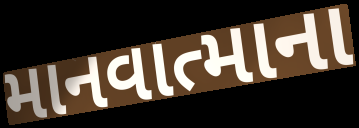
માનવાત્માના